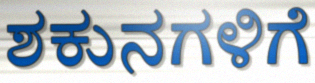
ಶಕುನಗಳಿಗೆ